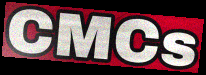
CMCs